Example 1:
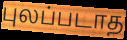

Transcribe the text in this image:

புலப்படாத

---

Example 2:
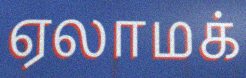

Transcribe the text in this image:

ஏலாமக்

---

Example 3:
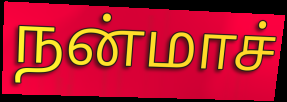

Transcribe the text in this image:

நன்மாச்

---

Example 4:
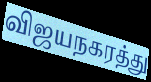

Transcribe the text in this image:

விஜயநகரத்து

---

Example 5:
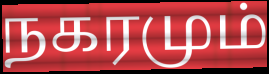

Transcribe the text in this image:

நகரமும்